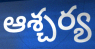
ఆశ్చర్య